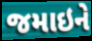
જમાઇને